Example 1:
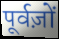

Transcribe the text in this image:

पूर्वज़ों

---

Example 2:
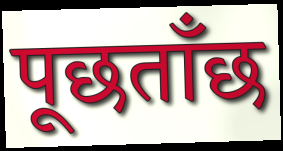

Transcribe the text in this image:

पूछताँछ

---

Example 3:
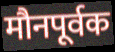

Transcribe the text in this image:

मौनपूर्वक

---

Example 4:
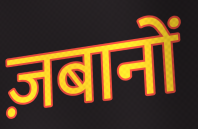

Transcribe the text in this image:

ज़बानों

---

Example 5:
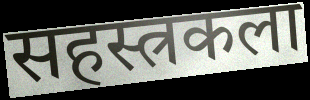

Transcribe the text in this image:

सहस्त्रकला